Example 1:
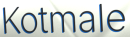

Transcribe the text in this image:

Kotmale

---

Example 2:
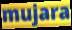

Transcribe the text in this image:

mujara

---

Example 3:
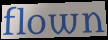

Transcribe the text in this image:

flown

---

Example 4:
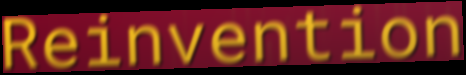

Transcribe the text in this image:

Reinvention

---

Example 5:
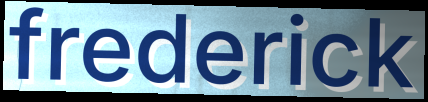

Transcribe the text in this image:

frederick